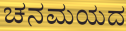
ಚನಮಯದ